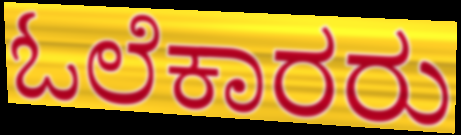
ಓಲೆಕಾರರು